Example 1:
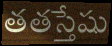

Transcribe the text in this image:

తతస్తేషు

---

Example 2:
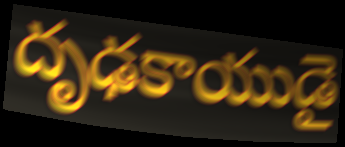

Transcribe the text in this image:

దృఢకాయుడై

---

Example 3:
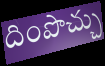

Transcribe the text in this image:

దింపొచ్చు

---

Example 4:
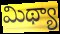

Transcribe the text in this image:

మిథ్యా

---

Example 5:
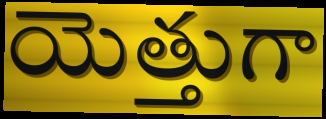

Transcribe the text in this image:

యెత్తుగా